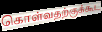
கொள்வதற்குக்கூட